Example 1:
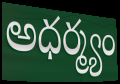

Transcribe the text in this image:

అధర్మ్యం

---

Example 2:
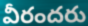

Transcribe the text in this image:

వీరందరు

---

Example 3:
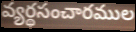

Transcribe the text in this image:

వ్యర్థసంచారముల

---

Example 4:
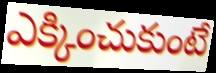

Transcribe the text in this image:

ఎక్కించుకుంటే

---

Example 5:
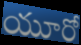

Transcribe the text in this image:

యూరో